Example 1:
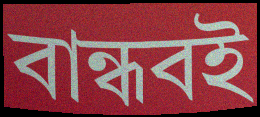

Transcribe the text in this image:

বান্ধবই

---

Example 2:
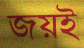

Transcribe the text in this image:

জয়ই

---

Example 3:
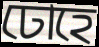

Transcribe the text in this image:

ঢোহে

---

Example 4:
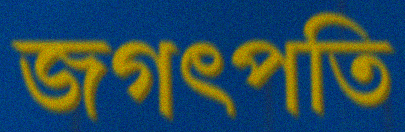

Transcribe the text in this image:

জগৎপতি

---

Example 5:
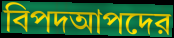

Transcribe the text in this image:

বিপদআপদের